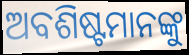
ଅବଶିଷ୍ଟମାନଙ୍କୁ